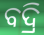
ବଦ୍ରି